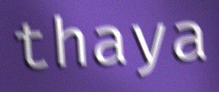
thaya